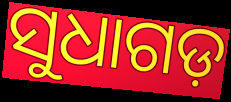
ସୁଧାଗଡ଼